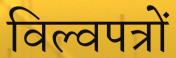
विल्वपत्रों